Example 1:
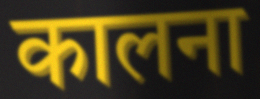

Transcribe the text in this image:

कालना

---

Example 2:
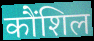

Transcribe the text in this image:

कौंशिल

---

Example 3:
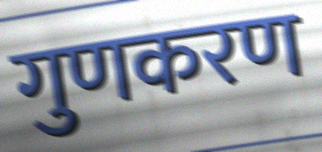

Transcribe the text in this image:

गुणकरण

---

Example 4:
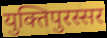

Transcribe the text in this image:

युक्तिपुरस्सर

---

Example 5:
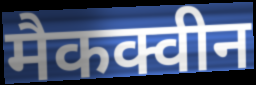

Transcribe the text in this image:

मैकक्वीन